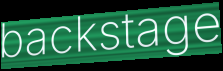
backstage